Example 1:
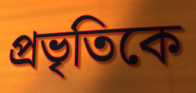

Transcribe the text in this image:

প্রভৃতিকে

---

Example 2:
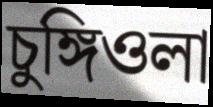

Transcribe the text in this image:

চুঙ্গিওলা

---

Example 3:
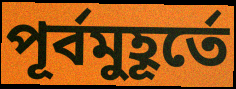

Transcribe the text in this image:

পূর্বমুহূর্তে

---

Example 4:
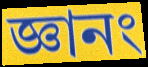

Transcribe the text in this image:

জ্ঞানং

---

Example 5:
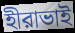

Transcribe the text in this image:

হীরাভাই